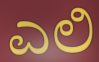
ಎಲಿ